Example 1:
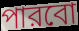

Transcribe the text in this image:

পারবো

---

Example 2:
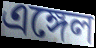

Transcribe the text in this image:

এঙ্গেল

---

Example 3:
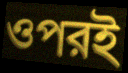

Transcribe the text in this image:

ওপরই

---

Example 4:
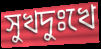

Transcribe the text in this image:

সুখদুঃখে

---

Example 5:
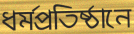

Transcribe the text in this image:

ধর্মপ্রতিষ্ঠানে